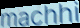
machhi